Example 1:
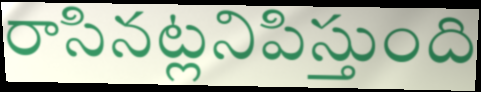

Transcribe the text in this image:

రాసినట్లనిపిస్తుంది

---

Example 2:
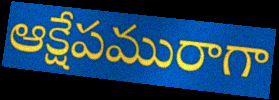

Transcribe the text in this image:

ఆక్షేపమురాగా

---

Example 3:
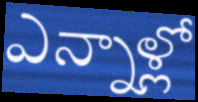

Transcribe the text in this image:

ఎన్నాళ్లో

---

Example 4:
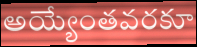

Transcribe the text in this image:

అయ్యేంతవరకూ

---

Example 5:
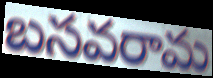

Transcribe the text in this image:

బసవరామ